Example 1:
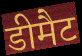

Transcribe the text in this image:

डीमैट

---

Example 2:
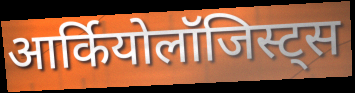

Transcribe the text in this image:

आर्कियोलॉजिस्ट्स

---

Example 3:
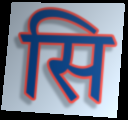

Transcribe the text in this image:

सि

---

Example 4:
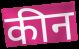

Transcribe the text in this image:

कीन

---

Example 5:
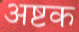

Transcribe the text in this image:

अष्टक